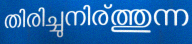
തിരിച്ചുനിര്ത്തുന്ന